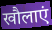
खौलाएं